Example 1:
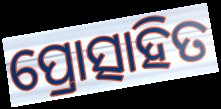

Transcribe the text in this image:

ପ୍ରୋତ୍ସାହିତ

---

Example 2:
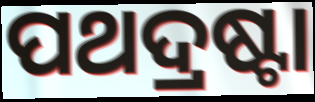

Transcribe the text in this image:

ପଥଦ୍ରଷ୍ଟା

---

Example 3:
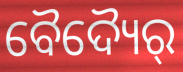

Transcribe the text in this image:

ବୈଦ୍ୟୈର୍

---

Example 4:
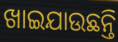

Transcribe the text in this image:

ଖାଇଯାଉଛନ୍ତି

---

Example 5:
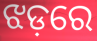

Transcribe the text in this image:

ଝଡ଼ରେ